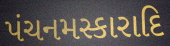
પંચનમસ્કારાદિ